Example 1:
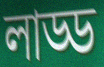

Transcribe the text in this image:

লাড্ড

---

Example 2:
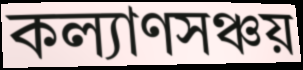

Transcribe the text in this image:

কল্যাণসঞ্চয়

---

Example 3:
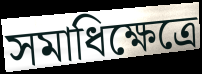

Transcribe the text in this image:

সমাধিক্ষেত্রে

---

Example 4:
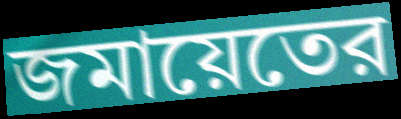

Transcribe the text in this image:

জমায়েতের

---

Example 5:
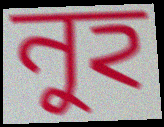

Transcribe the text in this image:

নুহ